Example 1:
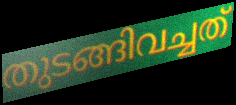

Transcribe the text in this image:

തുടങ്ങിവച്ചത്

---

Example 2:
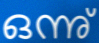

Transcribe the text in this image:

ഒന്നു്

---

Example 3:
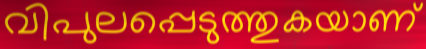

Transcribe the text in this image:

വിപുലപ്പെടുത്തുകയാണ്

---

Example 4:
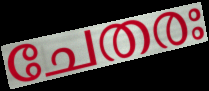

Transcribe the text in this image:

ചേതരഃ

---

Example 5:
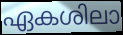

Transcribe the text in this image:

ഏകശിലാ